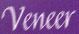
Veneer